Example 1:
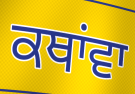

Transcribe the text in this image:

ਕਥਾਂਵਾ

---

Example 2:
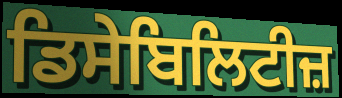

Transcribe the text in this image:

ਡਿਸੇਬਿਲਿਟੀਜ਼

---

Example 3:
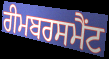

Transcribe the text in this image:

ਰੀਮਬਰਸਮੈਂਟ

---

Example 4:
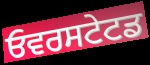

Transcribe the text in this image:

ਓਵਰਸਟੇਟਡ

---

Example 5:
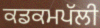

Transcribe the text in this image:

ਕਡਕਮਪੱਲੀ